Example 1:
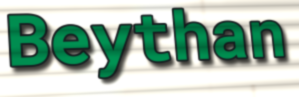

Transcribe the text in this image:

Beythan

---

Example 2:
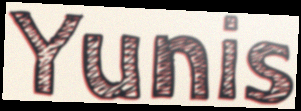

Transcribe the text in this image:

Yunis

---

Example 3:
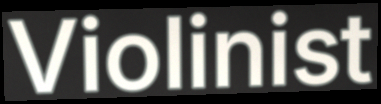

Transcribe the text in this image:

Violinist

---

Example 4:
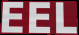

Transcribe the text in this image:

EEL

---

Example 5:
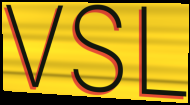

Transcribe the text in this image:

VSL